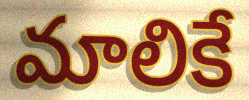
మాలికే